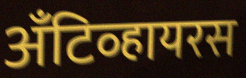
अँटिव्हायरस